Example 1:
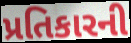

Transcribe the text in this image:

પ્રતિકારની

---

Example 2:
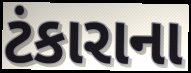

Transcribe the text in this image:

ટંકારાના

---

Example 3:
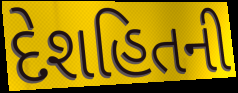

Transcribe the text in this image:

દેશહિતની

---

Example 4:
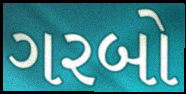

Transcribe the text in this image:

ગરબો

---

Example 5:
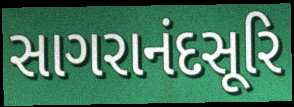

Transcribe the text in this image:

સાગરાનંદસૂરિ